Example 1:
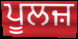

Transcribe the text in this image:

ਪੂਲਜ਼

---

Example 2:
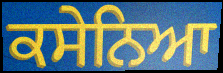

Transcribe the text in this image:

ਕਸੇਨਿਆ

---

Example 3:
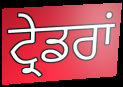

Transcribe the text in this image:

ਟ੍ਰੇਡਰਾਂ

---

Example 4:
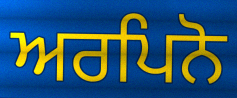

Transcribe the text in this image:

ਅਰਪਿਨੋ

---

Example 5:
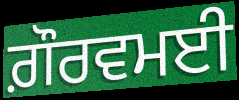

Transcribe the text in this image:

ਗ਼ੌਰਵਮਈ